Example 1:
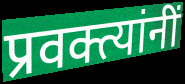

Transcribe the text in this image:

प्रवक्त्यांनीं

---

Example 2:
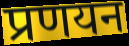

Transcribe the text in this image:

प्रणयन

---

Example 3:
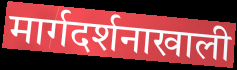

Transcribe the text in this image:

मार्गदर्शनाखाली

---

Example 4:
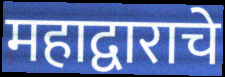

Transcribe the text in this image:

महाद्वाराचे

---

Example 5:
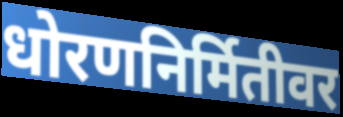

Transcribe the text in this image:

धोरणनिर्मितीवर